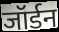
जॉर्डन